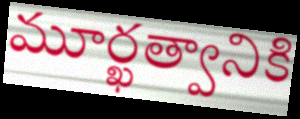
మూర్ఖత్వానికి